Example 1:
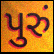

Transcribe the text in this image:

પુરું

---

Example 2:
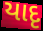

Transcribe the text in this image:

યાદૃ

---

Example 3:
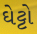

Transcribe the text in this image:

ઘેટ્ટો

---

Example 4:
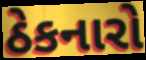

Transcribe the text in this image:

ઠેકનારો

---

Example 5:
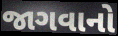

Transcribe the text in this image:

જાગવાનો